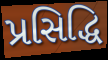
પ્રસિદ્ધિ